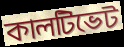
কালটিভেট